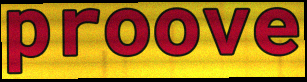
proove